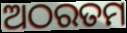
ଅଠରତମ